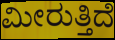
ಮೀರುತ್ತಿದೆ